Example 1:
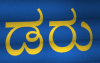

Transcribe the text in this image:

ಡರು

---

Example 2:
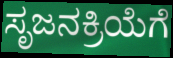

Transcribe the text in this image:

ಸೃಜನಕ್ರಿಯೆಗೆ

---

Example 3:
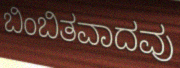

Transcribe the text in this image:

ಬಿಂಬಿತವಾದವು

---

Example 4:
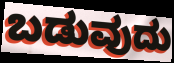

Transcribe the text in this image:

ಬಡುವುದು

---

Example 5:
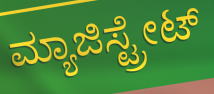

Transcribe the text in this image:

ಮ್ಯಾಜಿಸ್ಟ್ರೇಟ್